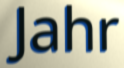
Jahr